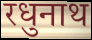
रधुनाथ